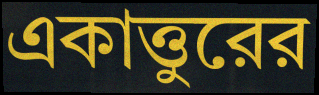
একাত্তুরের